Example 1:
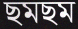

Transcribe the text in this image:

ছমছম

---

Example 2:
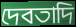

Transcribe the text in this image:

দেবতাদি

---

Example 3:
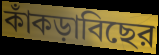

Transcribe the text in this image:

কাঁকড়াবিছের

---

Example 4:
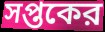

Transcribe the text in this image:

সপ্তকের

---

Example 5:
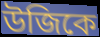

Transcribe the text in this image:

উজিকে